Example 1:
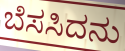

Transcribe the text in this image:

ಬೆಸಸಿದನು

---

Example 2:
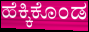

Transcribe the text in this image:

ಹೆಕ್ಕಿಕೊಂಡ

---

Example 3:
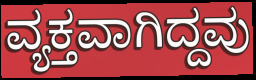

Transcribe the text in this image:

ವ್ಯಕ್ತವಾಗಿದ್ದವು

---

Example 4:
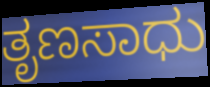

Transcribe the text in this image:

ತೃಣಸಾಧು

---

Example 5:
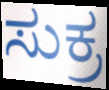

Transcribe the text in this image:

ಸುಕ್ರ